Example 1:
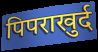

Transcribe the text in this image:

पिपराखुर्द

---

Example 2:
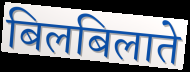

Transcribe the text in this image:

बिलबिलाते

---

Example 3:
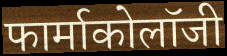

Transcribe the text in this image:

फार्माकोलॉजी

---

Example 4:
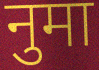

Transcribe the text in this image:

नुमा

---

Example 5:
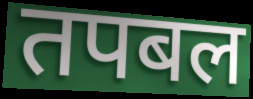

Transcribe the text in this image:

तपबल